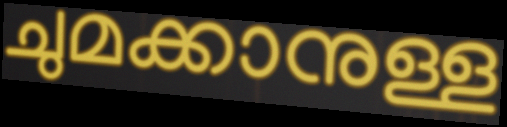
ചുമക്കാനുള്ള